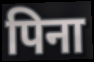
पिना